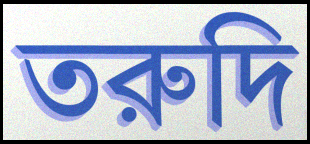
তরুদি